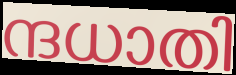
ന്ദധാതി